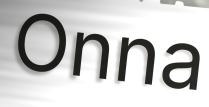
Onna